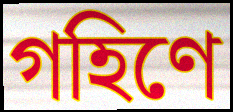
গহিণে